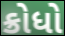
ક્રોધો